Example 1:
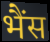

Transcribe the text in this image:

भैंस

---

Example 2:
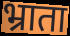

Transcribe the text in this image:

भ्राता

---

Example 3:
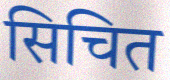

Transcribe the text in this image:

सिचित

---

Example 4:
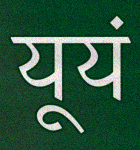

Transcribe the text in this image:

यूयं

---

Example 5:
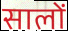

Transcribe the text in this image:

सालों